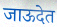
जाऊदेत